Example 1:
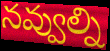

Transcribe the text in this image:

నవ్వుల్ని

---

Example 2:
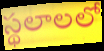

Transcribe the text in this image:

స్థలాలలో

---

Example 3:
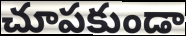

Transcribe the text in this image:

చూపకుండా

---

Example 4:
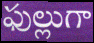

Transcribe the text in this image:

ఫుల్లుగా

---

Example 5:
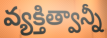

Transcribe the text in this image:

వ్యక్తిత్వాన్నీ